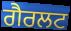
ਗੈਰਲਟ